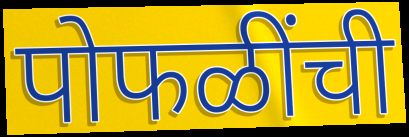
पोफळींची